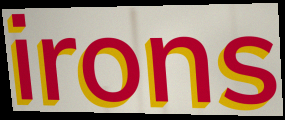
irons